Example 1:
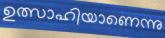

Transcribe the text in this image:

ഉത്സാഹിയാണെന്നു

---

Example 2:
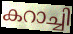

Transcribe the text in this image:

കറാച്ചി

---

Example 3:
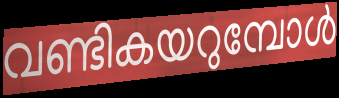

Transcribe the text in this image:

വണ്ടികയറുമ്പോൾ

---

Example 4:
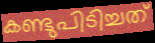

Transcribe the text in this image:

കണ്ടുപിടിച്ചത്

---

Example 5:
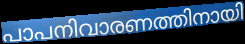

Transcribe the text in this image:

പാപനിവാരണത്തിനായി